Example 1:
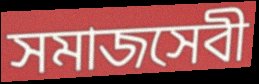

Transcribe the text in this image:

সমাজসেবী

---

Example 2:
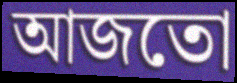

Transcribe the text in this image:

আজতো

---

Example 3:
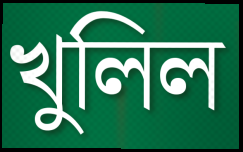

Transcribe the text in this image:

খুলিল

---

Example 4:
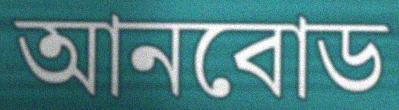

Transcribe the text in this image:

আনবোড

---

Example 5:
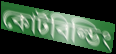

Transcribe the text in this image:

কোর্টবিল্ডিং